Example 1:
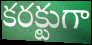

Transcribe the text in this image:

కరక్టుగా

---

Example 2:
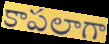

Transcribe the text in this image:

కాపలాగా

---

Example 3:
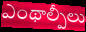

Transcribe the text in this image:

ఎంథాల్పీలు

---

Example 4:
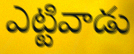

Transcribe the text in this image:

ఎట్టివాడు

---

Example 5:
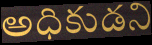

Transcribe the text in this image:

అధికుడని